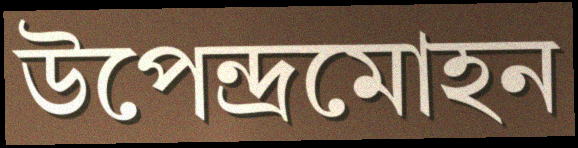
উপেন্দ্রমোহন